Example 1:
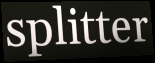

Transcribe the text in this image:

splitter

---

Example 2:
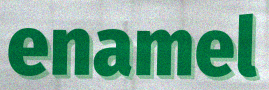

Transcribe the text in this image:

enamel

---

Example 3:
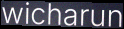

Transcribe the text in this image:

wicharun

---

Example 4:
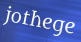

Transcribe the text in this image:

jothege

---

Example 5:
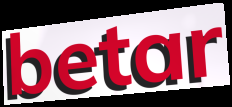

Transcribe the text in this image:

betar